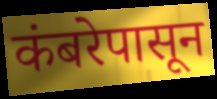
कंबरेपासून